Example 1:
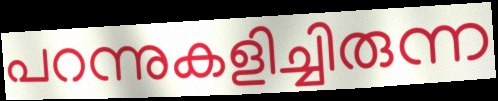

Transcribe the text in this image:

പറന്നുകളിച്ചിരുന്ന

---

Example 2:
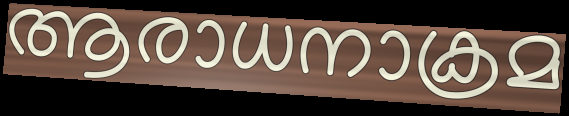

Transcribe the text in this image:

ആരാധനാക്രമ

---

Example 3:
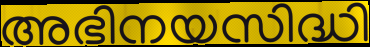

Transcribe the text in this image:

അഭിനയസിദ്ധി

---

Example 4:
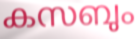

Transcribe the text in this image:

കസബും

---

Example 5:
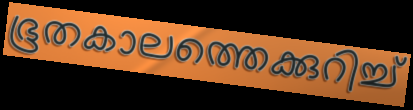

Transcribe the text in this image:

ഭൂതകാലത്തെക്കുറിച്ച്